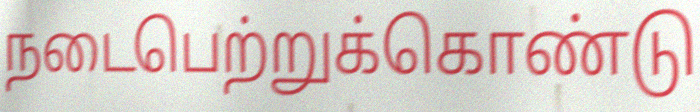
நடைபெற்றுக்கொண்டு